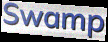
Swamp